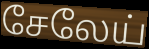
சேலேய்